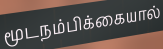
மூடநம்பிக்கையால்